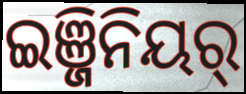
ଇଞ୍ଜିନିୟର୍